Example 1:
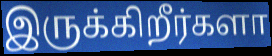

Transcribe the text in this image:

இருக்கிறீர்களா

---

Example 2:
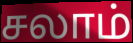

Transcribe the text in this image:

சலாம்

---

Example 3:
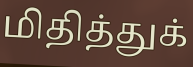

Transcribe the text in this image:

மிதித்துக்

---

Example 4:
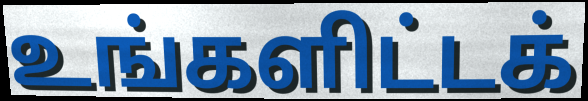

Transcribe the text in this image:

உங்களிட்டக்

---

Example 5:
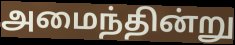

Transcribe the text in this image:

அமைந்தின்று